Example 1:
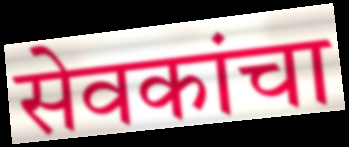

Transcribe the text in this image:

सेवकांचा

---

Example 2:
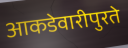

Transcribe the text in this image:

आकडेवारीपुरते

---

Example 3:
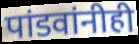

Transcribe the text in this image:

पांडवांनीही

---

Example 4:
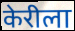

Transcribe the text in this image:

केरीला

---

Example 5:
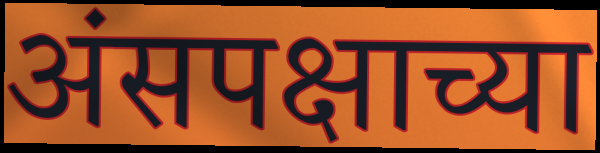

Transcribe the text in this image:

अंसपक्षाच्या